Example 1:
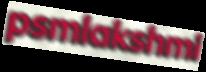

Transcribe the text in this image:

psmlakshmi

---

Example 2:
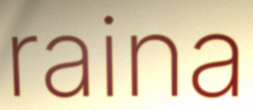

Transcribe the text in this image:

raina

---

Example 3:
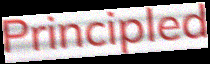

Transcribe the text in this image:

Principled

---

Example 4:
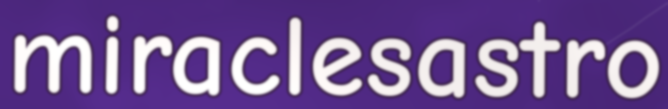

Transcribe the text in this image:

miraclesastro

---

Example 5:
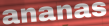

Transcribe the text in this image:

ananas